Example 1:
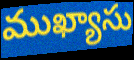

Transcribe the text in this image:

ముఖ్యాసు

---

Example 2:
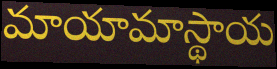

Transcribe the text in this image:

మాయామాస్థాయ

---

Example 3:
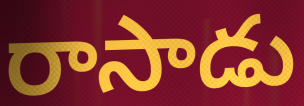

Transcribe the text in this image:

రాసాడు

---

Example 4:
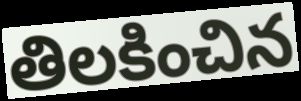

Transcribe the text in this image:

తిలకించిన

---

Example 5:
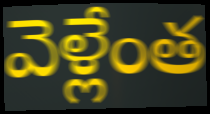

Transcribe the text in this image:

వెళ్లేంత